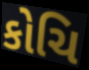
કોચિ